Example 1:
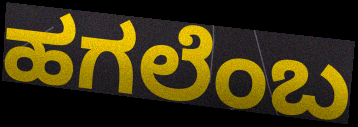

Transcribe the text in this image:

ಹಗಲೆಂಬ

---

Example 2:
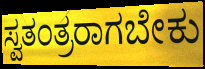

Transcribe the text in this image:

ಸ್ವತಂತ್ರರಾಗಬೇಕು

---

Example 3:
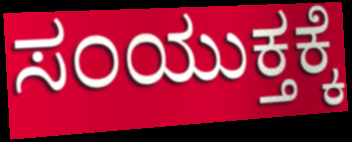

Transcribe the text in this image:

ಸಂಯುಕ್ತಕ್ಕೆ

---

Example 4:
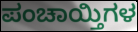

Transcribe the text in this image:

ಪಂಚಾಯ್ತಿಗಳ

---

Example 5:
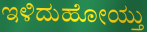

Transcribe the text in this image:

ಇಳಿದುಹೋಯ್ತು